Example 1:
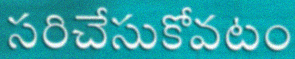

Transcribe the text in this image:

సరిచేసుకోవటం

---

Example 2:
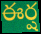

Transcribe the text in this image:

ఈర్ష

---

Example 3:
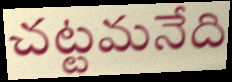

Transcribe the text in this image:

చట్టమనేది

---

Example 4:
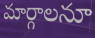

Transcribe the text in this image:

మార్గాలనూ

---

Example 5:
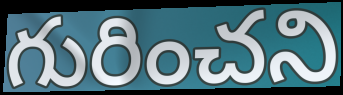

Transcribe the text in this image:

గురించని